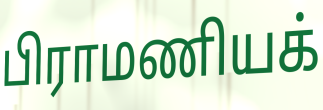
பிராமணியக்